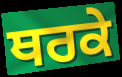
ਥਰਕੇ